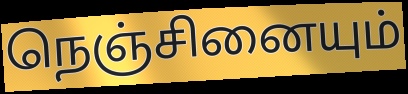
நெஞ்சினையும்